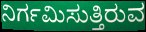
ನಿರ್ಗಮಿಸುತ್ತಿರುವ